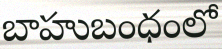
బాహుబంధంలో